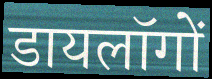
डायलॉगों